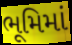
ભૂમિમાં